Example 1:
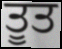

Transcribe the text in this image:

ਤੂਤ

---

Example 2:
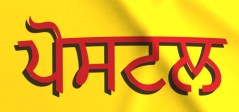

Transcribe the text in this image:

ਪੋਸਟਲ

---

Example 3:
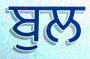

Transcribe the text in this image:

ਬੁਲ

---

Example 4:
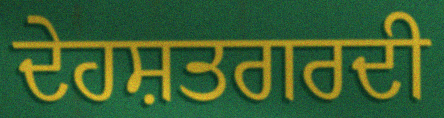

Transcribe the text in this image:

ਦੇਹਸ਼ਤਗਰਦੀ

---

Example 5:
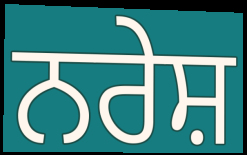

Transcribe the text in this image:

ਨਰੇਸ਼